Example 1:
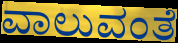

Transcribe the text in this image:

ವಾಲುವಂತೆ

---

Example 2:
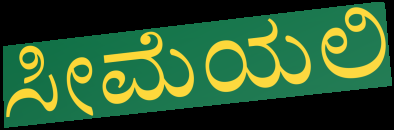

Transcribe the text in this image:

ಸೀಮೆಯಲಿ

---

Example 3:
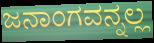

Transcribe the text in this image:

ಜನಾಂಗವನ್ನಲ್ಲ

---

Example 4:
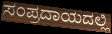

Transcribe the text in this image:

ಸಂಪ್ರದಾಯದಲ್ಲಿ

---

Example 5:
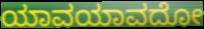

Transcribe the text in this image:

ಯಾವಯಾವದೋ